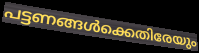
പട്ടണങ്ങൾക്കെതിരേയും